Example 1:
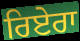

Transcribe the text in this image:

ਰਿਏਰਾ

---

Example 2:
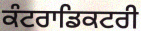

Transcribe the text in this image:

ਕੰਟਰਾਡਿਕਟਰੀ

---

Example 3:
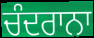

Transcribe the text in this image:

ਚੰਦਰਾਨਾ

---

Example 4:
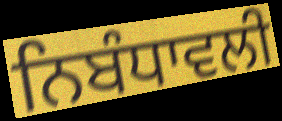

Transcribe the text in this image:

ਨਿਬੰਧਾਵਲੀ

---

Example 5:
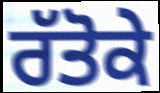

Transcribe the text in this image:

ਰੱਤੋਕੇ